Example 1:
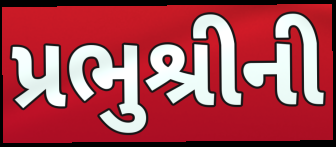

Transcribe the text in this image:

પ્રભુશ્રીની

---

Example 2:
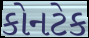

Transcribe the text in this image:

કોનટેક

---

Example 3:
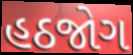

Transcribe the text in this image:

હઠજોગ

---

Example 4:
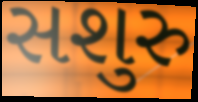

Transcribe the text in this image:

સશુરુ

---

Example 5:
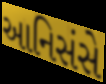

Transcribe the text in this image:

આનિસંસે